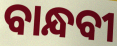
ବାନ୍ଧବୀ